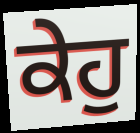
ਕੇਹੁ